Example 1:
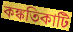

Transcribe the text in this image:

কঙ্কতিকাটি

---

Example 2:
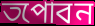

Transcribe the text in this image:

তপোবন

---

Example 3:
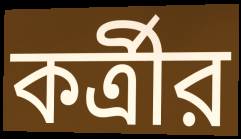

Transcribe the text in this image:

কর্ত্রীর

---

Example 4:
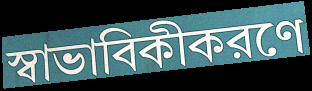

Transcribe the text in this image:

স্বাভাবিকীকরণে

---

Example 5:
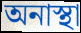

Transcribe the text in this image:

অনাস্থা